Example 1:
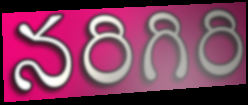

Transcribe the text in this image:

నరిగిరి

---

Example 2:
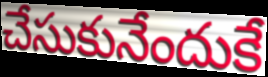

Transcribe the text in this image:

చేసుకునేందుకే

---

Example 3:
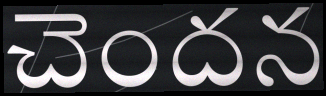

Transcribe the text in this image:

చెందన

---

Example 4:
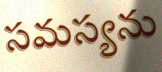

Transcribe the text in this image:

సమస్యను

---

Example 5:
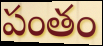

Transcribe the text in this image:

పంతం